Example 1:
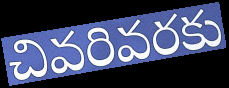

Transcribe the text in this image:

చివరివరకు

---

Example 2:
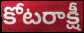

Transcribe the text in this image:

కోటరాక్షీ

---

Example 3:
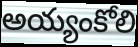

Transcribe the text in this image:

అయ్యంకోలి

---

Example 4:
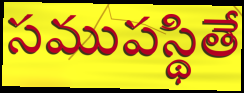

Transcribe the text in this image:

సముపస్థితే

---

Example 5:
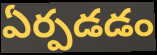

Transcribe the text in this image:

ఏర్పడడం